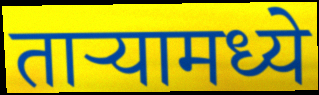
ताऱ्यामध्ये